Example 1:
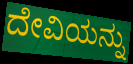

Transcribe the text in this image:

ದೇವಿಯನ್ನು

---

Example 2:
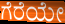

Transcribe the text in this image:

ಗೆರೆಯೇ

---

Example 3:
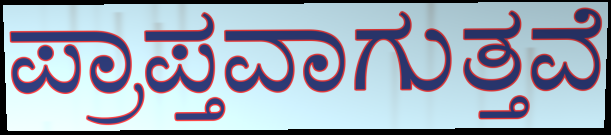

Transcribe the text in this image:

ಪ್ರಾಪ್ತವಾಗುತ್ತವೆ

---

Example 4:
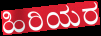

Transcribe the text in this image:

ಹಿರಿಯರ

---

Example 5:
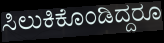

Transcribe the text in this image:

ಸಿಲುಕಿಕೊಂಡಿದ್ದರೂ